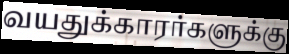
வயதுக்காரர்களுக்கு